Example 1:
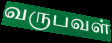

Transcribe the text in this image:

வருபவள்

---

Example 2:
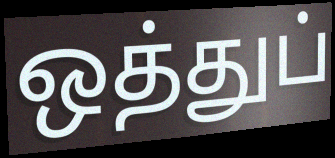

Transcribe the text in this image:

ஒத்துப்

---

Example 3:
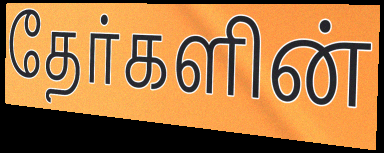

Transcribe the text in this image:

தேர்களின்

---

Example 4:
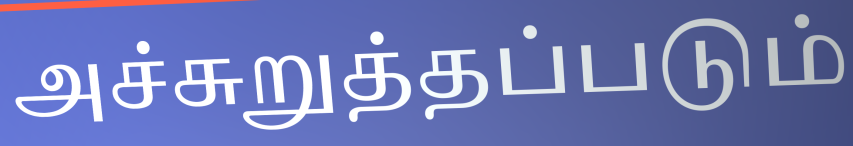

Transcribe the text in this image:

அச்சுறுத்தப்படும்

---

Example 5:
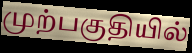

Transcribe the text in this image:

முற்பகுதியில்